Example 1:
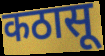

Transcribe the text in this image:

कठासू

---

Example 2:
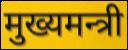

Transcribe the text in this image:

मुख्यमन्त्री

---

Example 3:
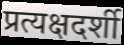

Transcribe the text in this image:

प्रत्यक्षदर्शी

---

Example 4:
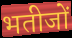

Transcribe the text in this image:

भतीजों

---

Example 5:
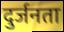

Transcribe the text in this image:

दुर्जनता